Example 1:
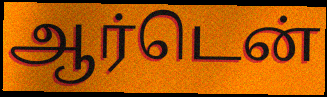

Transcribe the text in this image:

ஆர்டென்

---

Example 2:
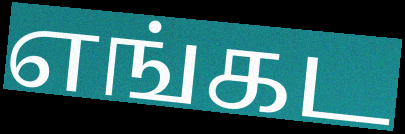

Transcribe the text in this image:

எங்கட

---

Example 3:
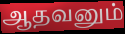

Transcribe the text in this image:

ஆதவனும்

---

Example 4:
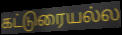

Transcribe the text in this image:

கட்டுரையல்ல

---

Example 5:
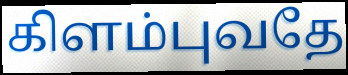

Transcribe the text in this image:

கிளம்புவதே